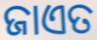
ଜାଏତ